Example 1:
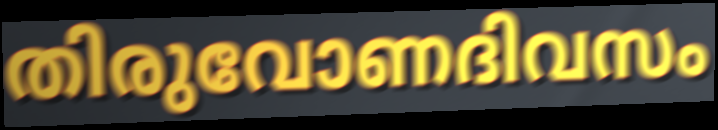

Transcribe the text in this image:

തിരുവോണദിവസം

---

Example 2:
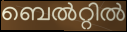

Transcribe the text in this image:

ബെൽറ്റിൽ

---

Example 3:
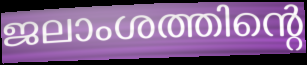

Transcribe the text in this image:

ജലാംശത്തിന്റെ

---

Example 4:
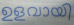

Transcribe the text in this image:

ഉളവായി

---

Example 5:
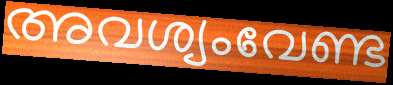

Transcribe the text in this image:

അവശ്യംവേണ്ട